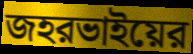
জহরভাইয়ের